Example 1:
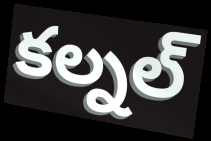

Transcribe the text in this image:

కల్నల్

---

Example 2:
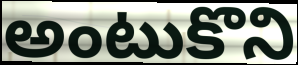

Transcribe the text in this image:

అంటుకొని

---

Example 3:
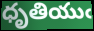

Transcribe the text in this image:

ధృతియుఁ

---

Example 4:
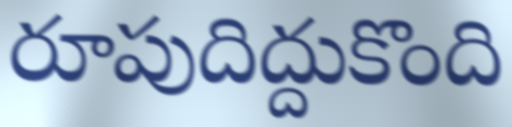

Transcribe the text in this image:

రూపుదిద్దుకొంది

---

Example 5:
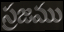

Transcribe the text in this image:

స్రజము